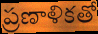
ప్రణాళికతో